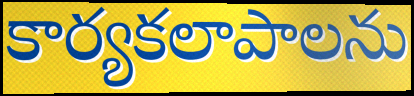
కార్యకలాపాలను